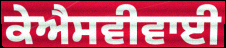
ਕੇਐਸਵੀਵਾਈ